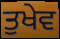
ਤੁਖੇਵ